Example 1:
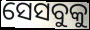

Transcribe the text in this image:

ସେସବୁକୁ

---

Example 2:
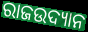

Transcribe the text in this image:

ରାଜଉଦ୍ୟାନ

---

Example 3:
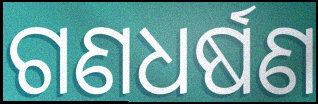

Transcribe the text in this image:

ଗଣଧର୍ଷଣ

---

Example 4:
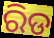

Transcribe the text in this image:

ରିଡ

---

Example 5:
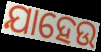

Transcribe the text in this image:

ଯାହେଉ